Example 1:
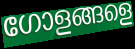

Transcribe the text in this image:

ഗോളങ്ങളെ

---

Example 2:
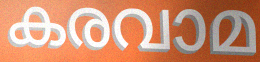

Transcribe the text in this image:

കരവാമ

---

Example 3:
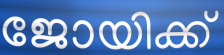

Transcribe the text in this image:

ജോയിക്ക്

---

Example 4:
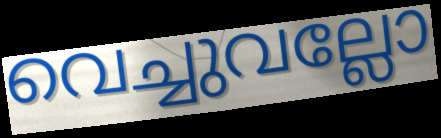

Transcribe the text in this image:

വെച്ചുവല്ലോ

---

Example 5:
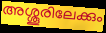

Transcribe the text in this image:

അശ്ശൂരിലേക്കും